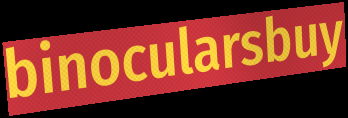
binocularsbuy